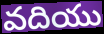
వదియు